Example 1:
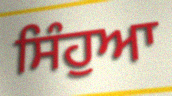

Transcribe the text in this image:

ਸਿੰਹੁਆ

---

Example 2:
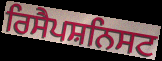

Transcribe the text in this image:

ਰਿਸੈਪਸ਼ਨਿਸਟ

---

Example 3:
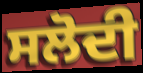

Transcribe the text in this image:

ਸਲੋਦੀ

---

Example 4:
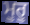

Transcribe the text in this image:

ਮੂਰੂ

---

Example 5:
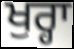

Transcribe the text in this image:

ਖੁਰ੍ਹਾ